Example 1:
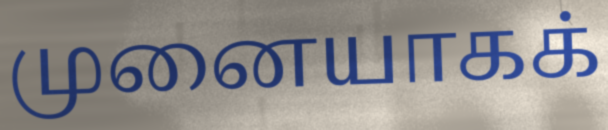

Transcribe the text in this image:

முனையாகக்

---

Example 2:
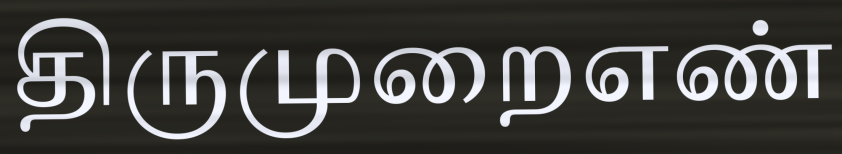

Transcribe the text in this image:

திருமுறைஎண்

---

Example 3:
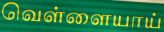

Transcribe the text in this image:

வெள்ளையாய்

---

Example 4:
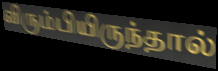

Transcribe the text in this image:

விரும்பியிருந்தால்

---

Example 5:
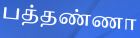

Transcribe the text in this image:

பத்தண்ணா